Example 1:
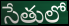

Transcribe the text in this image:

సేతులో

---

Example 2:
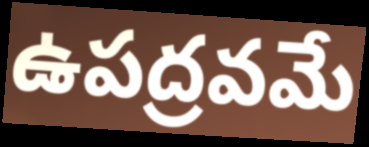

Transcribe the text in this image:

ఉపద్రవమే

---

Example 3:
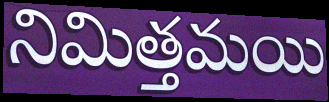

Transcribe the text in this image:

నిమిత్తమయి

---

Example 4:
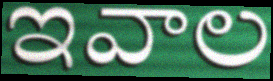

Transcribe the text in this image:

ఇవాల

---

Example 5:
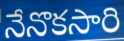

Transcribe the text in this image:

నేనొకసారి